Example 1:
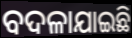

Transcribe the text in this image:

ବଦଳାଯାଇଛି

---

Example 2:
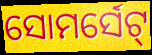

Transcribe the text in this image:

ସୋମର୍ସେଟ୍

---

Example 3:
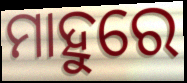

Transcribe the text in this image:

ମାହୁରେ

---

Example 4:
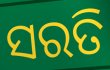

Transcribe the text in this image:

ସରତି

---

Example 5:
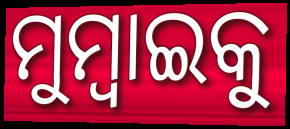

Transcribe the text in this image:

ମୁମ୍ବାଇକୁ